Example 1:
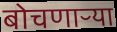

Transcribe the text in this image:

बोचणाऱ्या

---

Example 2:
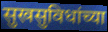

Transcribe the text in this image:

सुखसुविधांच्या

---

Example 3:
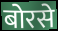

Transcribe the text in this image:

बोरसे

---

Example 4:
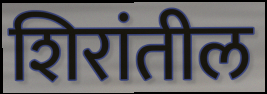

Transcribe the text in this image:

शिरांतील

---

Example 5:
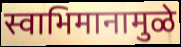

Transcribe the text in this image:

स्वाभिमानामुळे